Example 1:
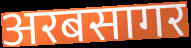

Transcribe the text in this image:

अरबसागर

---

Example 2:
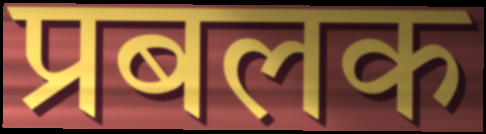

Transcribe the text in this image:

प्रबलक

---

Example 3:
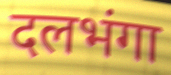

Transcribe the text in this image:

दलभंगा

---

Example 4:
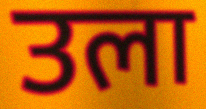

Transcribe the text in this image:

उला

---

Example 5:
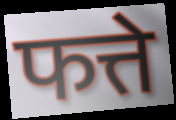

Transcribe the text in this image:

फत्ते